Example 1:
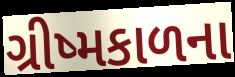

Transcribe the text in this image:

ગ્રીષ્મકાળના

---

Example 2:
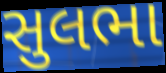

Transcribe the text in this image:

સુલભા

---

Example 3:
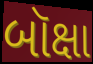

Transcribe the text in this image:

બૉક્ષા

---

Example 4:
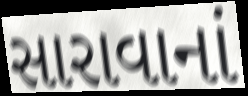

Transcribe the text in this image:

સારાવાનાં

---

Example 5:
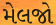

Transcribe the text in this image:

મેલજો